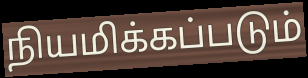
நியமிக்கப்படும்